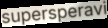
supersperavi